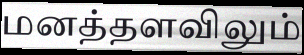
மனத்தளவிலும்